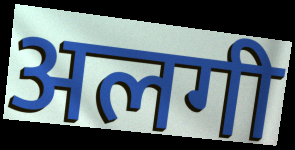
अलगी